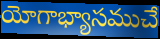
యోగాభ్యాసముచే